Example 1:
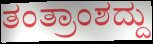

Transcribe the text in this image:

ತಂತ್ರಾಂಶದ್ದು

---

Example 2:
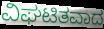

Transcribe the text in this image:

ವಿಘಟಿತವಾದ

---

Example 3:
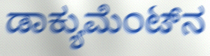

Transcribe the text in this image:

ಡಾಕ್ಯುಮೆಂಟ್‌ನ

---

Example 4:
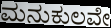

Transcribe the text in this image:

ಮನುಕುಲವೇ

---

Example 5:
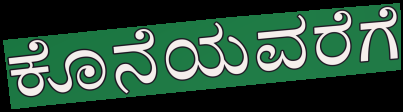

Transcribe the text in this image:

ಕೊನೆಯವರೆಗೆ